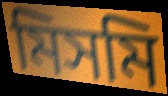
মিসমি